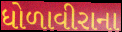
ધોળાવીરાના